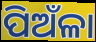
ପିଅଁଳା